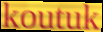
koutuk